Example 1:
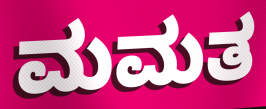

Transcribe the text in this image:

ಮಮತ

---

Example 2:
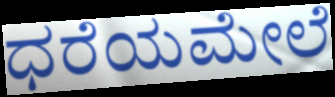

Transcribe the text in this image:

ಧರೆಯಮೇಲೆ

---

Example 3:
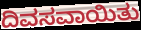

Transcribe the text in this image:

ದಿವಸವಾಯಿತು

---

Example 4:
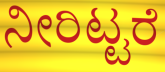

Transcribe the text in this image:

ನೀರಿಟ್ಟರೆ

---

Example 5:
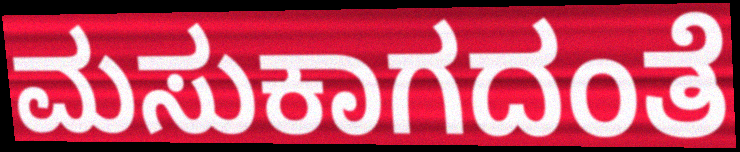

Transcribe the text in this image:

ಮಸುಕಾಗದಂತೆ